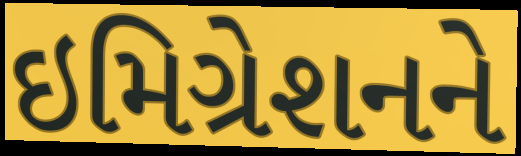
ઇમિગ્રેશનને